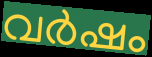
വർഷം